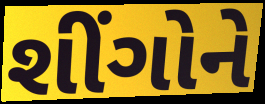
શીંગોને